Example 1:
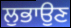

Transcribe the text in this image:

ਲੁਭਾਉਣ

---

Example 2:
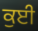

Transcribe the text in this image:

ਕੁਈ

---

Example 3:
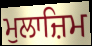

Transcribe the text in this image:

ਮੁਲਾਜ਼ਿਮ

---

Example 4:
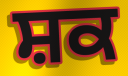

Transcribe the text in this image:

ਸ਼ਕ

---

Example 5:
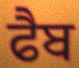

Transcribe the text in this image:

ਫੈਬ